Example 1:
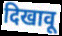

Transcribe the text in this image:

दिखावू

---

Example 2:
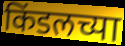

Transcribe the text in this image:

किंडलच्या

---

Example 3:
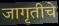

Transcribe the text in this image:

जागृतीचे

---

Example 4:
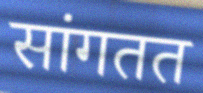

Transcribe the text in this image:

सांगतत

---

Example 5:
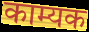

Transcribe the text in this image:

काम्यक